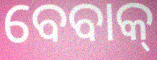
ବେବାକ୍